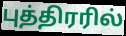
புத்திரரில்